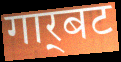
गार्बट